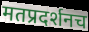
मतप्रदर्शनच